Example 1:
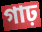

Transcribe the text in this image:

গাঢ়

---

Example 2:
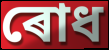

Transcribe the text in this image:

ৰোধ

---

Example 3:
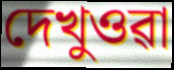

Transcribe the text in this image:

দেখুওৱা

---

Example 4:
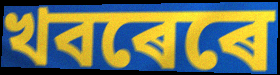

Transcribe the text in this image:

খবৰেৰে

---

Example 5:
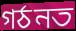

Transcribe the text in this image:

গঠনত